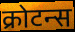
क्रोटन्स